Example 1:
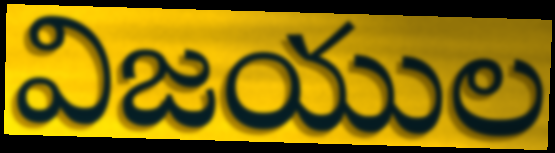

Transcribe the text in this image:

విజయుల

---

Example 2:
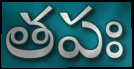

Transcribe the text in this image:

తపః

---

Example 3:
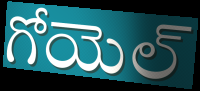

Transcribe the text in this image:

గోయెల్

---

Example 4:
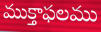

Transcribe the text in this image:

ముక్తాఫలము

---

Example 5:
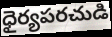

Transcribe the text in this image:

ధైర్యపరచుడి